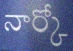
నార్కో